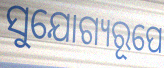
ସୁଯୋଗ୍ୟରୂପେ